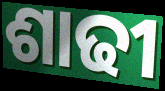
ଶାଢୀ